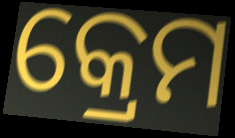
କ୍ରେମ